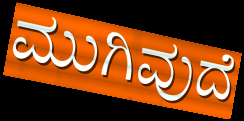
ಮುಗಿವುದೆ